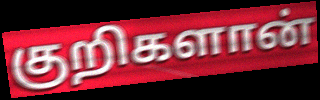
குறிகளான்